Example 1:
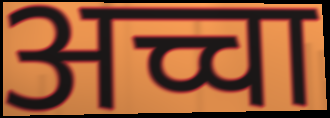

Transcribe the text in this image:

अच्चा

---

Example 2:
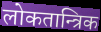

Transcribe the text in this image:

लोकतान्त्रिक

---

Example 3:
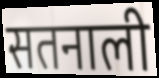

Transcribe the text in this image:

सतनाली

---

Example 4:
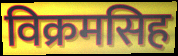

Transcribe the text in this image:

विक्रमसिह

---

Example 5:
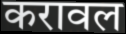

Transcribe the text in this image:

करावल